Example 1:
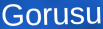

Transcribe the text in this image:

Gorusu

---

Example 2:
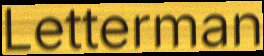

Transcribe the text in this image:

Letterman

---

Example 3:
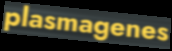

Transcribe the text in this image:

plasmagenes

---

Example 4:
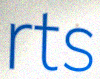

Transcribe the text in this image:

rts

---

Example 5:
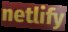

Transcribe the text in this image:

netlify